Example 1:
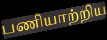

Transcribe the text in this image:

பணியாற்றிய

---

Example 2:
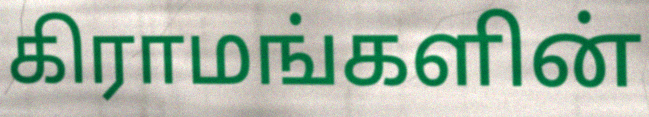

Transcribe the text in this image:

கிராமங்களின்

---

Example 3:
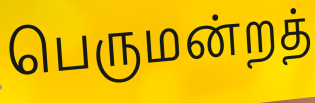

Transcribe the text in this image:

பெருமன்றத்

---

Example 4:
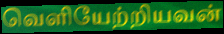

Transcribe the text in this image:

வெளியேற்றியவன்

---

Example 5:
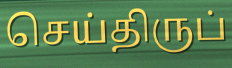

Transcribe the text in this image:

செய்திருப்